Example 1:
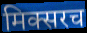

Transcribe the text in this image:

मिक्सरच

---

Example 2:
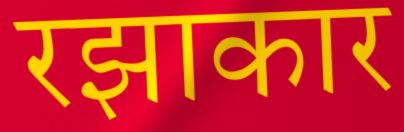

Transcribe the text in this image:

रझाकार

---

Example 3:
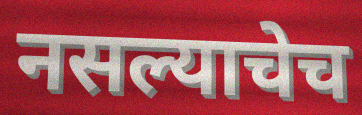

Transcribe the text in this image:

नसल्याचेच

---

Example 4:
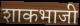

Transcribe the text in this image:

शाकभाजी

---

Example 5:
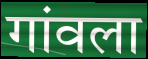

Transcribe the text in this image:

गांवला